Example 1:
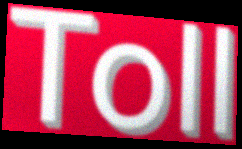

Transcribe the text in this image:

Toll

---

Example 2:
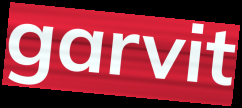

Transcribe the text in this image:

garvit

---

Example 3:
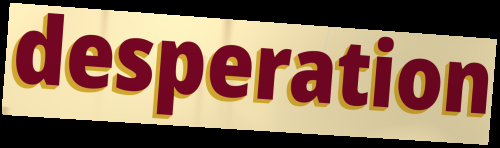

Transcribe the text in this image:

desperation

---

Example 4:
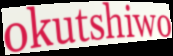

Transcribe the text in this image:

okutshiwo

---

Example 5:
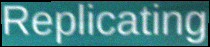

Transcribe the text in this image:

Replicating